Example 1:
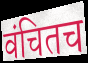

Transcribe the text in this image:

वंचितच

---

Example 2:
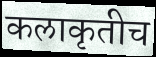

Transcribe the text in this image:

कलाकृतीच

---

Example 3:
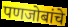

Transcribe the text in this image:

पणजोबांचे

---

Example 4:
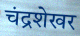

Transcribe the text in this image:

चंद्रशेखर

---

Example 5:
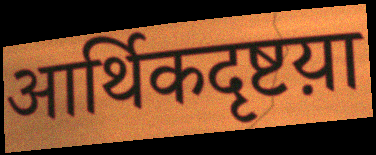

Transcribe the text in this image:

आर्थिकदृष्टय़ा